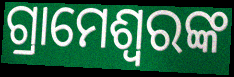
ଗ୍ରାମେଶ୍ୱରଙ୍କ